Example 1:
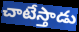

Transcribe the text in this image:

చాటేస్తాడు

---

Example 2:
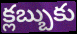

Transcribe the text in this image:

క్లబ్బుకు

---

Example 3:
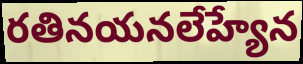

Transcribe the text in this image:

రతినయనలేహ్యేన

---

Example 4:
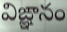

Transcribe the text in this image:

విఙ్ఞానం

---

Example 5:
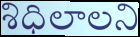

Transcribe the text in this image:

శిధిలాలని